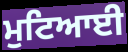
ਮੁਟਿਆਈ